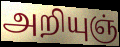
அறியுஞ்